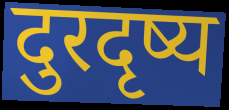
दुरदृष्य